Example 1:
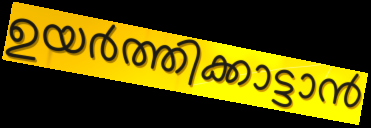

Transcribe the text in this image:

ഉയർത്തിക്കാട്ടാൻ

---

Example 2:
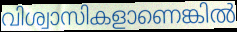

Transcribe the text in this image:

വിശ്വാസികളാണെങ്കിൽ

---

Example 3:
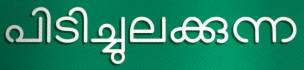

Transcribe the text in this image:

പിടിച്ചുലക്കുന്ന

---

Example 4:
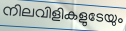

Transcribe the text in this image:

നിലവിളികളുടേയും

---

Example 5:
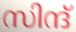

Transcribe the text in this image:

സിന്ദ്